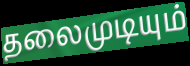
தலைமுடியும்